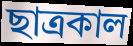
ছাত্রকাল